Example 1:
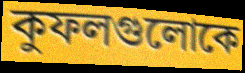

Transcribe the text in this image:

কুফলগুলোকে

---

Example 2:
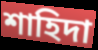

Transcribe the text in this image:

শাহিদা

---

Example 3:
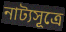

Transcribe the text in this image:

নাট্যসূত্রে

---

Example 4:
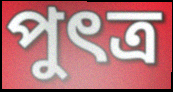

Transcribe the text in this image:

পুৎত্র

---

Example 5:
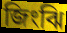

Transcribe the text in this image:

জিংঝি